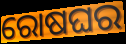
ରୋଷଘର